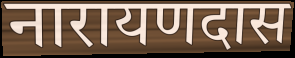
नारायणदास